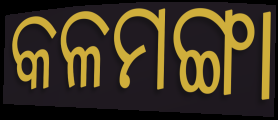
କଳମଙ୍ଗା